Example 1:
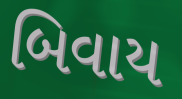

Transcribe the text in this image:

બિવાય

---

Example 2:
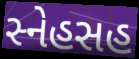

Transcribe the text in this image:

સ્નેહસહ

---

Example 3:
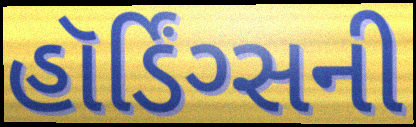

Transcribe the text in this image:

હૉર્ડિંગ્સની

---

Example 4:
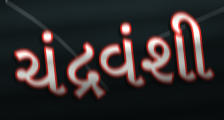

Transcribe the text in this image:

ચંદ્રવંશી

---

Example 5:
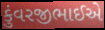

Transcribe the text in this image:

કુંવરજીભાઈએ